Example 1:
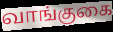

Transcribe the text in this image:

வாங்குகை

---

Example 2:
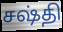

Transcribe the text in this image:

சஷ்தி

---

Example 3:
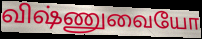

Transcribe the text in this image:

விஷ்ணுவையோ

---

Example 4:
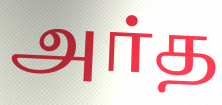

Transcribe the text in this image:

அர்த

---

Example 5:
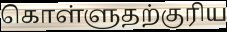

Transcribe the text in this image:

கொள்ளுதற்குரிய